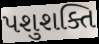
પશુશક્તિ